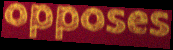
opposes